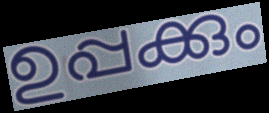
ഉപ്പക്കും